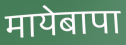
मायेबापा